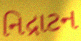
નિદ્રાટન